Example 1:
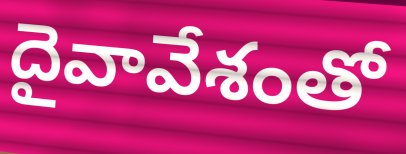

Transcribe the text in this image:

దైవావేశంతో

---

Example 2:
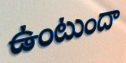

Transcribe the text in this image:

ఉంటుందా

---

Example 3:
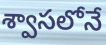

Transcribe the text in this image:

శ్వాసలోనే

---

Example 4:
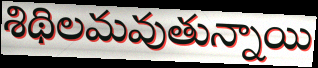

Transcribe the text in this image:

శిథిలమవుతున్నాయి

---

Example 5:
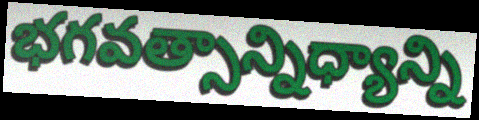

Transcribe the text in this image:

భగవత్సాన్నిధ్యాన్ని